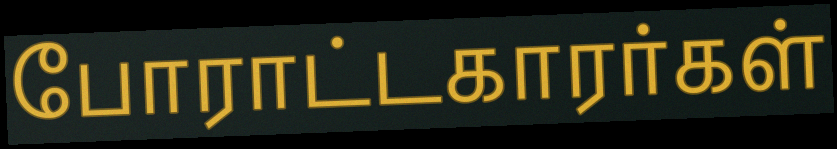
போராட்டகாரர்கள்